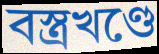
বস্ত্রখণ্ডে